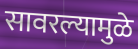
सावरल्यामुळे